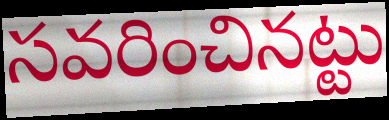
సవరించినట్టు